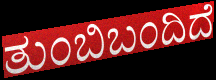
ತುಂಬಿಬಂದಿದೆ